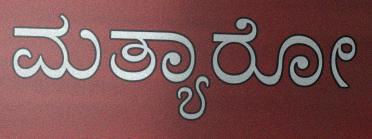
ಮತ್ಯಾರೋ